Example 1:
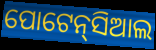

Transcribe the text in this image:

ପୋଟେନ୍‌ସିଆଲ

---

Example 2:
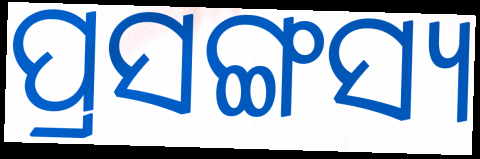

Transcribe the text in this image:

ପ୍ରସଙ୍ଗସ୍ୟ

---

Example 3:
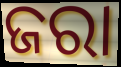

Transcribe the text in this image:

ଜରା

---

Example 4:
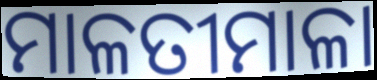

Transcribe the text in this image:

ମାଳତୀମାଳା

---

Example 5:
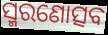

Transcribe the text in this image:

ସ୍ମରଣୋତ୍ସବ